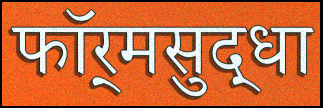
फॉर्मसुद्धा